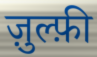
ज़ुल्फ़ी